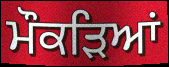
ਮੌਕੜਿਆਂ